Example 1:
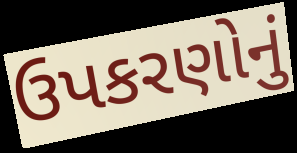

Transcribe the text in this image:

ઉપકરણોનું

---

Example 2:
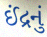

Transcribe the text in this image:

ઈંદ્રનું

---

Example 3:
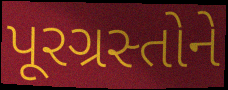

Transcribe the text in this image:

પૂરગ્રસ્તોને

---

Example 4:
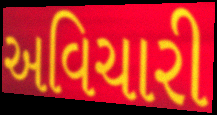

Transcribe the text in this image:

અવિચારી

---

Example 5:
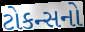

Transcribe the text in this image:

ટોકન્સનો